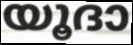
യൂദാ